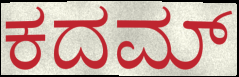
ಕದಮ್